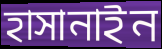
হাসানাইন